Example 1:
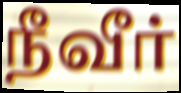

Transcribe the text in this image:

நீவீர்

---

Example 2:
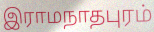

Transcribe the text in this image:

இராமநாதபுரம்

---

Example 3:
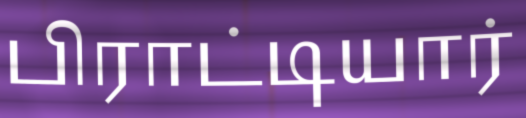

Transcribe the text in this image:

பிராட்டியார்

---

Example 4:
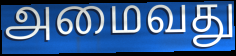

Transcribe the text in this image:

அமைவது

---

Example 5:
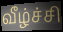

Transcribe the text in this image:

வீழ்ச்சி